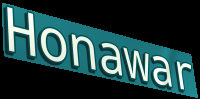
Honawar